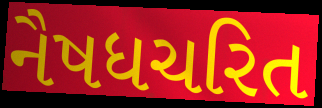
નૈષધચરિત